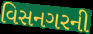
વિસનગરની